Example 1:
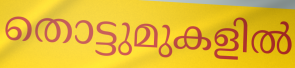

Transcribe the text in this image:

തൊട്ടുമുകളിൽ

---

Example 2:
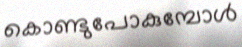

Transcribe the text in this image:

കൊണ്ടുപോകുമ്പോൾ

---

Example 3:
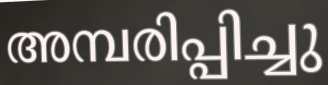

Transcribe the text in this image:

അമ്പരിപ്പിച്ചു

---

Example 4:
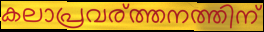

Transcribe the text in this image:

കലാപ്രവര്ത്തനത്തിന്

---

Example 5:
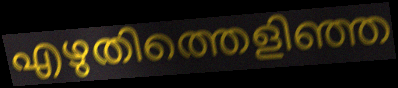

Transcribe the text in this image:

എഴുതിത്തെളിഞ്ഞ